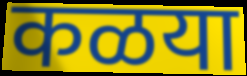
कळया